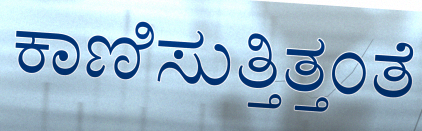
ಕಾಣಿಸುತ್ತಿತ್ತಂತೆ